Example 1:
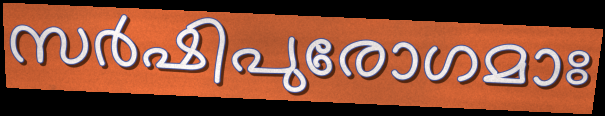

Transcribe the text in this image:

സർഷിപുരോഗമാഃ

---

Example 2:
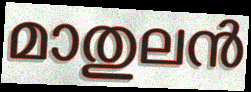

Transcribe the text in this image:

മാതുലൻ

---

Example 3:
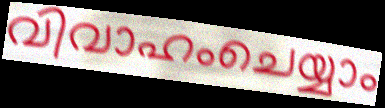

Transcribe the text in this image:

വിവാഹംചെയ്യാം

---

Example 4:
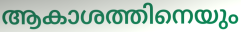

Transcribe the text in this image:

ആകാശത്തിനെയും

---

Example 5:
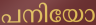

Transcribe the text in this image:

പനിയോ